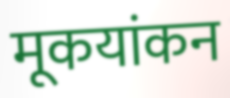
मूकयांकन